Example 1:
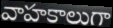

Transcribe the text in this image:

వాహకాలుగా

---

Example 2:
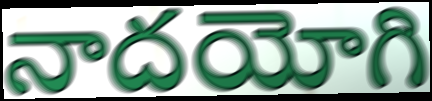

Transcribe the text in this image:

నాదయోగి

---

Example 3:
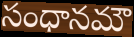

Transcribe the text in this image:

సంధానమౌ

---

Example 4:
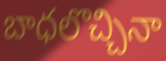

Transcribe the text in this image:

బాధలొచ్చినా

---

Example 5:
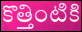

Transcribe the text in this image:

కొత్తింటికి